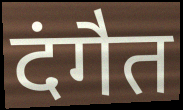
दंगैत